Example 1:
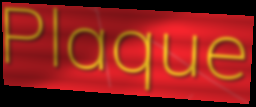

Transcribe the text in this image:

Plaque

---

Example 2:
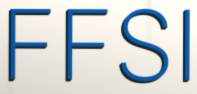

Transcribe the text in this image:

FFSI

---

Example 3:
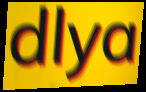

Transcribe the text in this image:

dlya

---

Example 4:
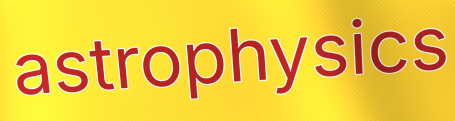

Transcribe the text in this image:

astrophysics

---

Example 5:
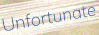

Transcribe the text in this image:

Unfortunate